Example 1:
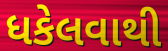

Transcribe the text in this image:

ધકેલવાથી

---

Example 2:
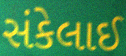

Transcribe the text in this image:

સંકેલાઈ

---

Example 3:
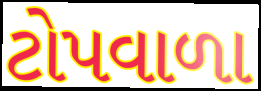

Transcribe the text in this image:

ટોપવાળા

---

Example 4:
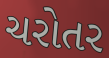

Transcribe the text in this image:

ચરોતર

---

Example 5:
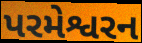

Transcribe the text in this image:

પરમેશ્વરન